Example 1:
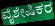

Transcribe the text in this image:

ವೈಶೇಷಿಕರ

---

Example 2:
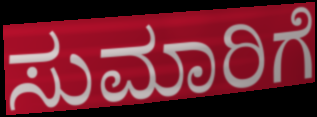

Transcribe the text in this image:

ಸುಮಾರಿಗೆ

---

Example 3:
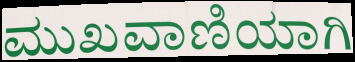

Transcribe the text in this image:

ಮುಖವಾಣಿಯಾಗಿ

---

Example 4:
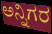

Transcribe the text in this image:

ಅನ್ನಿಗರ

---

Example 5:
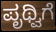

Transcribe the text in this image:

ಪೃಥ್ವಿಗೆ